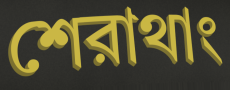
শেরাথাং